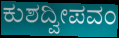
ಕುಶದ್ವೀಪವಂ